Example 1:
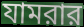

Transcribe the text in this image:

যামরার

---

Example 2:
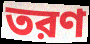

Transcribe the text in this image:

তরণ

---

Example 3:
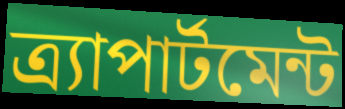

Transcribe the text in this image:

ত্র্যাপার্টমেন্ট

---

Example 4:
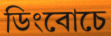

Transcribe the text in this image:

ডিংবোচে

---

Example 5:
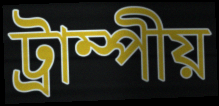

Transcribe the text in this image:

ট্রাম্পীয়